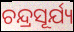
ଚନ୍ଦ୍ରସୂର୍ଯ୍ୟ